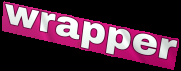
wrapper